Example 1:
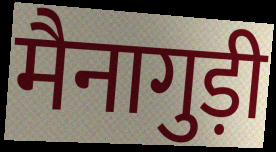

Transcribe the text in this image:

मैनागुड़ी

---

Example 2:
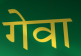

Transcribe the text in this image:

गेवा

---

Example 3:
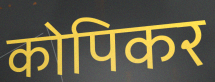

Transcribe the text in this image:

कोपिकर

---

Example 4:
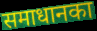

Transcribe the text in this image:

समाधानका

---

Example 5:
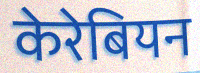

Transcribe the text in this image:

केरेबियन